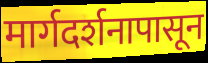
मार्गदर्शनापासून